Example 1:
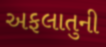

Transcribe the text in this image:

અફલાતુની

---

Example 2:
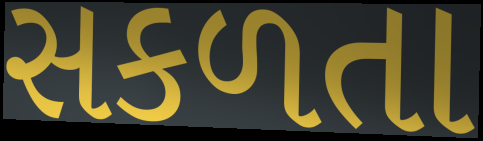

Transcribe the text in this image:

સકળતા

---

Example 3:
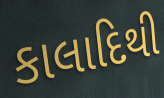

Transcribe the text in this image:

કાલાદિથી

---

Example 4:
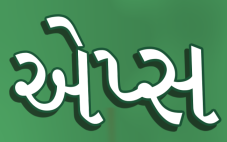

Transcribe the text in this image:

એપ્સ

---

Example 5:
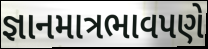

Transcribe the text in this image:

જ્ઞાનમાત્રભાવપણે